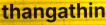
thangathin